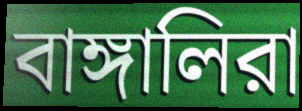
বাঙ্গালিরা